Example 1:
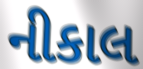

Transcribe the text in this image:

નીકાલ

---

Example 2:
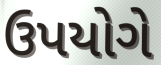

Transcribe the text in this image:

ઉપયોગે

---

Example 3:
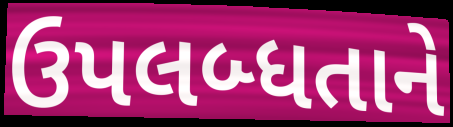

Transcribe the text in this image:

ઉપલબ્ધતાને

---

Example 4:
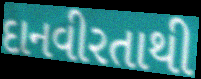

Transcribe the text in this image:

દાનવીરતાથી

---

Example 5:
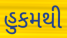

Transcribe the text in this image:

હુકમથી